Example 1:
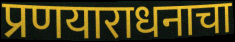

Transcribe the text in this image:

प्रणयाराधनाचा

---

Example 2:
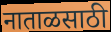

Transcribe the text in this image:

नाताळसाठी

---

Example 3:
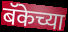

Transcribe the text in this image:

बॅकेच्या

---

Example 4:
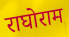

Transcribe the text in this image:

राघोराम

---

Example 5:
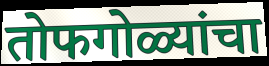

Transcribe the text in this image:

तोफगोळ्यांचा